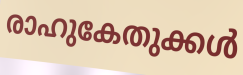
രാഹുകേതുക്കൾ